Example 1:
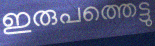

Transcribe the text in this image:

ഇരുപത്തെട്ടു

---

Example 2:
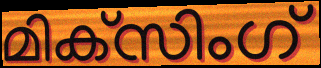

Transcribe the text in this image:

മിക്‌സിംഗ്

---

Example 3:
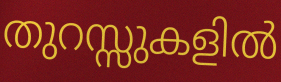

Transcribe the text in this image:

തുറസ്സുകളിൽ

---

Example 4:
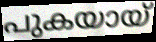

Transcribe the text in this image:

പുകയായ്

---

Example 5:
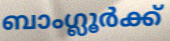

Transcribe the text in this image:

ബാംഗ്ലൂർക്ക്